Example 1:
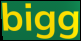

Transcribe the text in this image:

bigg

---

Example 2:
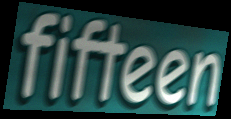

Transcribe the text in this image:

fifteen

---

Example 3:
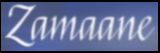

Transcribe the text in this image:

Zamaane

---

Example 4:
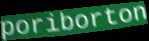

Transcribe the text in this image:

poriborton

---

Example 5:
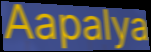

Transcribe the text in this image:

Aapalya